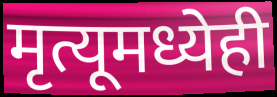
मृत्यूमध्येही